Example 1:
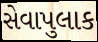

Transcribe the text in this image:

સેવાપુલાક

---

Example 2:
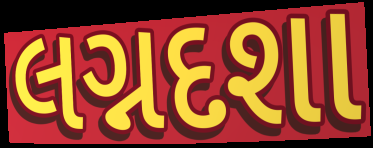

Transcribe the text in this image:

લગ્નદશા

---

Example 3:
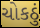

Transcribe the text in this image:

ચોકઠું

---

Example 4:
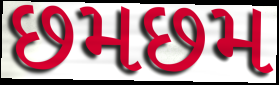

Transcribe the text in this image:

છમછમ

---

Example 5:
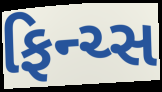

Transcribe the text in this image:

ફિન્ચ્સ